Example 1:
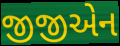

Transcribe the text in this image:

જીજીએન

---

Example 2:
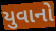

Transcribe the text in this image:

યુવાનો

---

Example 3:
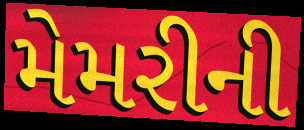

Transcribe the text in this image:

મેમરીની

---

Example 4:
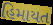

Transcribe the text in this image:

હિમાયત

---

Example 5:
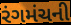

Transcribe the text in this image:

રંગમંચની